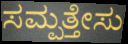
ಸಮ್ಪತ್ತೇಸು